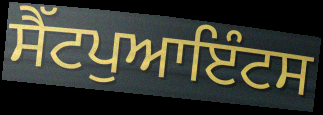
ਸੈੱਟਪੁਆਇੰਟਸ